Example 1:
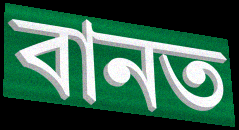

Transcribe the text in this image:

বানত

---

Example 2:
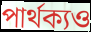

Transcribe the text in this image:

পাৰ্থক্যও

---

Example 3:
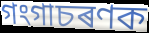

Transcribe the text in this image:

গংগাচৰণক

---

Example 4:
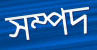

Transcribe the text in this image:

সম্পদ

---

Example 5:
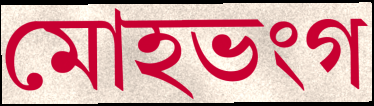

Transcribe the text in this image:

মোহভংগ